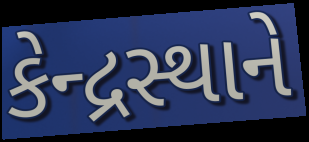
કેન્દ્રસ્થાને